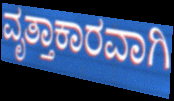
ವೃತ್ತಾಕಾರವಾಗಿ